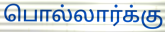
பொல்லார்க்கு